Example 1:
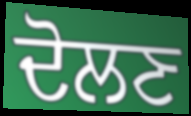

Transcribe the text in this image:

ਦੋਲਣ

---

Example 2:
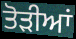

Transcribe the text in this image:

ਤੋਡ਼ੀਆਂ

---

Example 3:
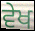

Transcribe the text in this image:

ਵੇਖ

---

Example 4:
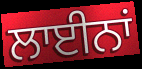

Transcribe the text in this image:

ਲਾਈਨਾਂ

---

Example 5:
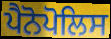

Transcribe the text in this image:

ਪੈਨੋਪੋਲਿਸ